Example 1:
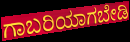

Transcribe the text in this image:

ಗಾಬರಿಯಾಗಬೇಡಿ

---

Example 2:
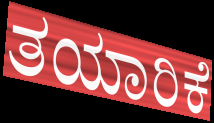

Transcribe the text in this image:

ತಯಾರಿಕೆ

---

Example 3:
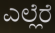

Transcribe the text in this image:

ಎಲ್ಲೆರೆ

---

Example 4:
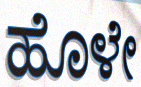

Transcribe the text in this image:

ಹೊಳೇ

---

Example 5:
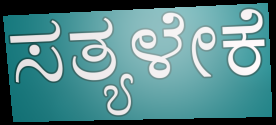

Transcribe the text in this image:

ಸತ್ಯಳೇಕೆ